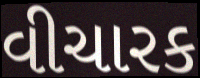
વીચારક